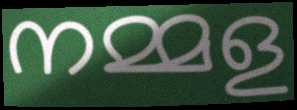
നമ്മള